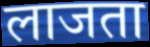
लाजता